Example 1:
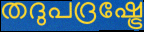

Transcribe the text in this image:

തദുപദ്രഷ്ട്രേ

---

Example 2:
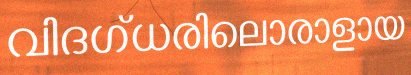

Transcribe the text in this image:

വിദഗ്ധരിലൊരാളായ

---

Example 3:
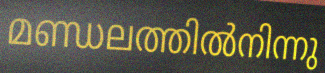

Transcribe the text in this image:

മണ്ഡലത്തിൽനിന്നു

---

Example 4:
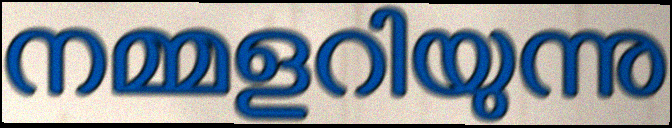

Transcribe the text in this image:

നമ്മളറിയുന്നു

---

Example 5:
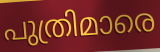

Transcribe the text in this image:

പുത്രിമാരെ